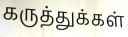
கருத்துக்கள்